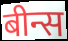
बीन्स